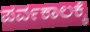
ಪರ್ವಕಾಲಕ್ಕೆ